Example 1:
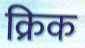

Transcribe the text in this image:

क्रिक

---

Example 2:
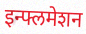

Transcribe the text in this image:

इन्फ्लमेशन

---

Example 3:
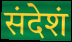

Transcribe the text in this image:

संदेशं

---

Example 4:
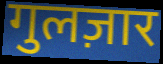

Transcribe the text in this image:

गुलज़ार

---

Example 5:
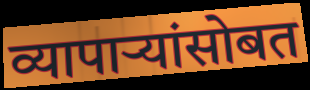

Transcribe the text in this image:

व्यापाऱ्यांसोबत